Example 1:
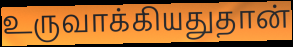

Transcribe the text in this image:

உருவாக்கியதுதான்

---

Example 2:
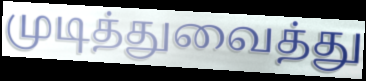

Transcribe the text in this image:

முடித்துவைத்து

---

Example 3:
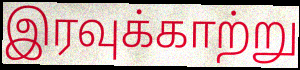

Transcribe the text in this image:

இரவுக்காற்று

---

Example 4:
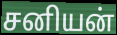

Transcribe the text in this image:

சனியன்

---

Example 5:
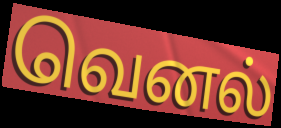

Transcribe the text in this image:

வெனல்